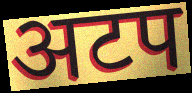
अटप